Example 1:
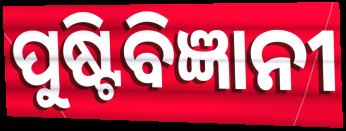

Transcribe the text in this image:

ପୁଷ୍ଟିବିଜ୍ଞାନୀ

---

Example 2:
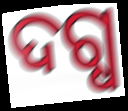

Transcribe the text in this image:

ଦଗ୍ଧ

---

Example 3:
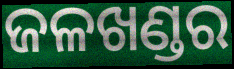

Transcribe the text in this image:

ଜଳଖଣ୍ଡର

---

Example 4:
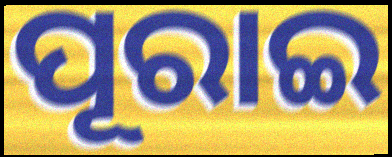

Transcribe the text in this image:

ପୂରାଇ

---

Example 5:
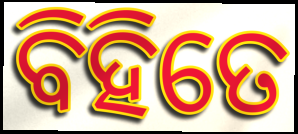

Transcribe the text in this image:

ବିହିତେ